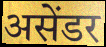
असेंडर